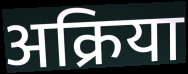
अक्रिया